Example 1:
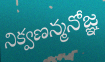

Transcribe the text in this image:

నిక్వణన్మనోజ్ఞ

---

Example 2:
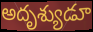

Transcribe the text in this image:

అదృశ్యుడూ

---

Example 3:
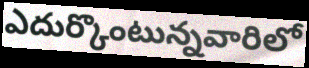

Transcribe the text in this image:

ఎదుర్కొంటున్నవారిలో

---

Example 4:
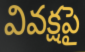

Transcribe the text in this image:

వివక్షపై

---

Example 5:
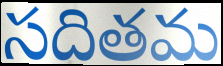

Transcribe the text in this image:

సదితమ